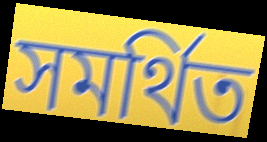
সমৰ্থিত